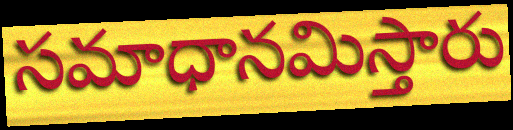
సమాధానమిస్తారు